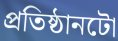
প্ৰতিষ্ঠানটো